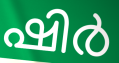
ഷിർ